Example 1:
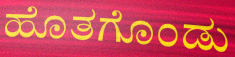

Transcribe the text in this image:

ಹೊತಗೊಂಡು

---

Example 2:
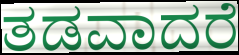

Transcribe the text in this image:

ತಡವಾದರೆ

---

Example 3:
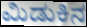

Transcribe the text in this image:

ಮಿಡುಕಿನ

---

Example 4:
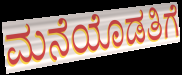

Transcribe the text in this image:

ಮನೆಯೊಡತಿಗೆ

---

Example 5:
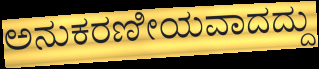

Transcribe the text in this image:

ಅನುಕರಣೀಯವಾದದ್ದು